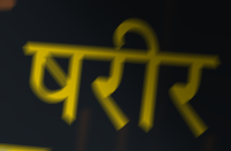
षरीर